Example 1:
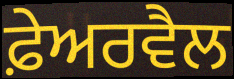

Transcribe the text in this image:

ਫ਼ੇਅਰਵੈਲ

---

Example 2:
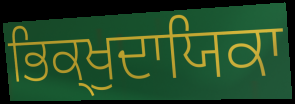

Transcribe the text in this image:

ਭਿਕ੍ਖੁਦਾਯਿਕਾ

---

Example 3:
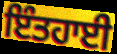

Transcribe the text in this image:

ਇੰਤਹਾਈ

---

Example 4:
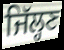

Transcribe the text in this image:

ਜਿੱਲ੍ਹਣ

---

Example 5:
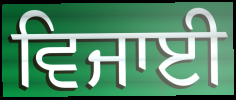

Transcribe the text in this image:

ਵਿਜਾਈ